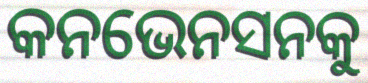
କନଭେନସନକୁ